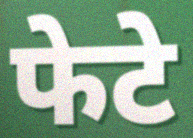
फेटे